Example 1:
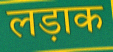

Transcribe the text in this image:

लड़ाक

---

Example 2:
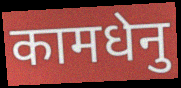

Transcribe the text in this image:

कामधेनु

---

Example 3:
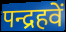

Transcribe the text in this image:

पन्द्रहवें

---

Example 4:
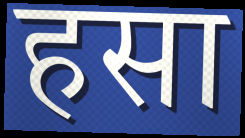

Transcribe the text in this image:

हसा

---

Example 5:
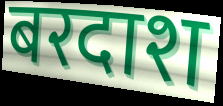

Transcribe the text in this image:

बरदाश